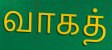
வாகத்